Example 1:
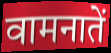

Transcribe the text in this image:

वामनातें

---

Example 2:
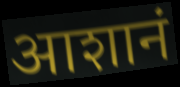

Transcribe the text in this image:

आशानं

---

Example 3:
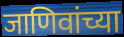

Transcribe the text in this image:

जाणिवांच्या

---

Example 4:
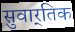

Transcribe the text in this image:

सुवार्तिक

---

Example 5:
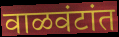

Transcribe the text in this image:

वाळवंटांत